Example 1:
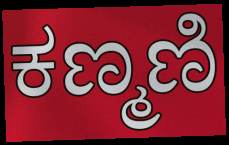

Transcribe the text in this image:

ಕಣ್ಮಣಿ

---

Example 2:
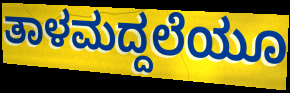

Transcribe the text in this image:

ತಾಳಮದ್ದಲೆಯೂ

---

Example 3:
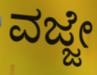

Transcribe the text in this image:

ವಜ್ಜೇ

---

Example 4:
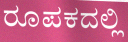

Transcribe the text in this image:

ರೂಪಕದಲ್ಲಿ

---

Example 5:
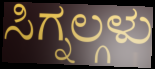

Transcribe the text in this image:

ಸಿಗ್ನಲ್ಗಳು